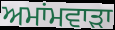
ਅਮਾਂਮਵਾੜਾ